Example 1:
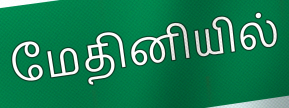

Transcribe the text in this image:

மேதினியில்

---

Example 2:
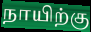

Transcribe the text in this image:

நாயிற்கு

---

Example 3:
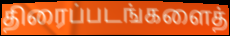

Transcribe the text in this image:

திரைப்படங்களைத்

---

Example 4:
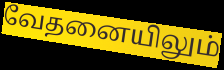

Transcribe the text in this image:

வேதனையிலும்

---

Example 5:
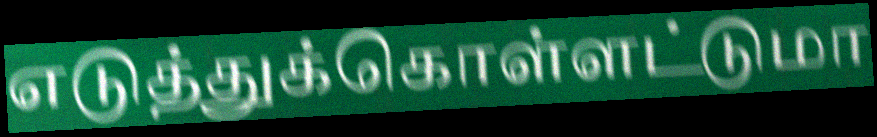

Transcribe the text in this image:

எடுத்துக்கொள்ளட்டுமா